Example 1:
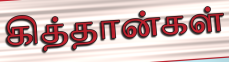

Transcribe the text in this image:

கித்தான்கள்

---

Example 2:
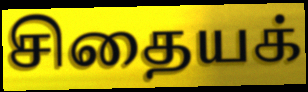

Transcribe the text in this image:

சிதையக்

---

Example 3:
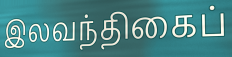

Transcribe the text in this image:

இலவந்திகைப்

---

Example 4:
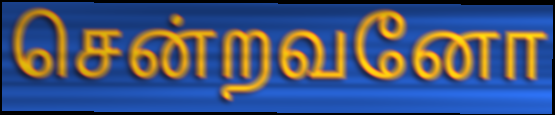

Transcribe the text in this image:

சென்றவனோ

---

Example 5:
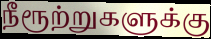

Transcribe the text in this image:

நீரூற்றுகளுக்கு